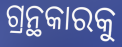
ଗ୍ରନ୍ଥକାରକୁ